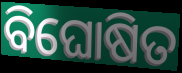
ବିଘୋଷିତ